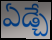
ఏడ్చే